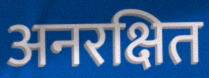
अनरक्षित